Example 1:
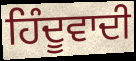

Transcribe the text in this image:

ਹਿੰਦੂਵਾਦੀ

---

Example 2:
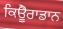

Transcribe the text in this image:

ਕਿਊੈਰਾਡਾਨ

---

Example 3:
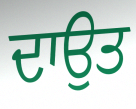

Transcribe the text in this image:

ਦਾਉਤ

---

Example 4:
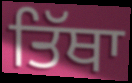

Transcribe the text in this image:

ਤਿੱਥਾ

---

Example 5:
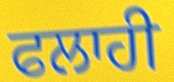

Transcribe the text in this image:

ਫਲਾਹੀ